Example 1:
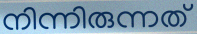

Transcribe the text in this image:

നിന്നിരുന്നത്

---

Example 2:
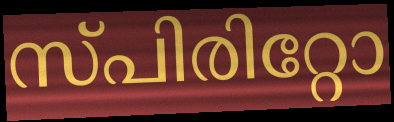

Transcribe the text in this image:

സ്പിരിറ്റോ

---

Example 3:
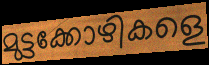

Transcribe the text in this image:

മുട്ടക്കോഴികളെ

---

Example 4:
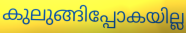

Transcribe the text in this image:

കുലുങ്ങിപ്പോകയില്ല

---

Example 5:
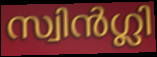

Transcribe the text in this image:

സ്വിൻഗ്ലി